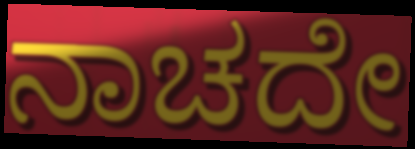
ನಾಚದೇ